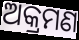
ଅକ୍ରମଣ